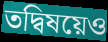
তদ্বিষয়েও